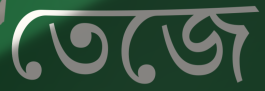
তেজে